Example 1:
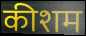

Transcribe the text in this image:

कीशम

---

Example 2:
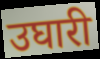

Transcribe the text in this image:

उघारी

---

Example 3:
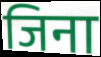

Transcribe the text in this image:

जिना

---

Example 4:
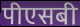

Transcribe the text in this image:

पीएसबी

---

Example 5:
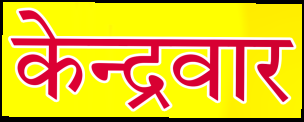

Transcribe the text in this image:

केन्‍द्रवार